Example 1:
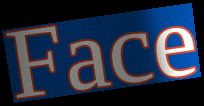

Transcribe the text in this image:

Face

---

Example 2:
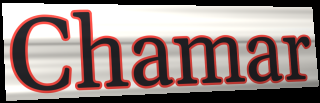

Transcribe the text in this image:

Chamar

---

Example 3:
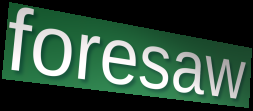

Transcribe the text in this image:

foresaw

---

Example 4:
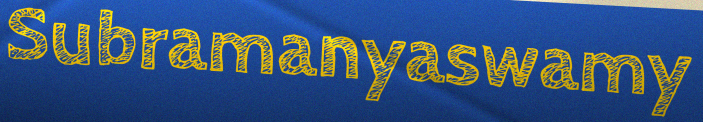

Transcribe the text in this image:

Subramanyaswamy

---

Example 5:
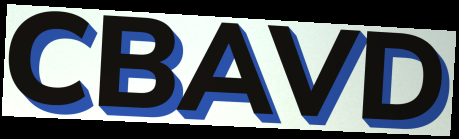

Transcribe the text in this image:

CBAVD